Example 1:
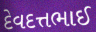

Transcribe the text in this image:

દેવદત્તભાઈ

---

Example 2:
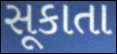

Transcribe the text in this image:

સૂકાતા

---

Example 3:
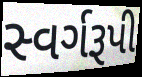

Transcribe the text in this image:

સ્વર્ગરૂપી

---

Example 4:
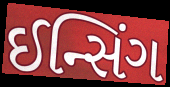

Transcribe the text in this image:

ઈન્સિંગ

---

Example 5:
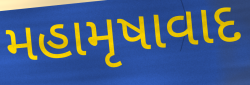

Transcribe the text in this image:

મહામૃષાવાદ